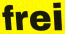
frei